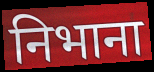
निभाना